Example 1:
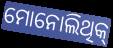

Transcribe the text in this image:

ମୋନୋଲିଥିକ୍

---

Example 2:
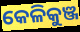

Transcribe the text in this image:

କେଳିକୁଞ୍ଜ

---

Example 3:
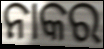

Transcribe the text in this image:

ନାକର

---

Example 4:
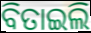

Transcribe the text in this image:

ବିତାଇଲି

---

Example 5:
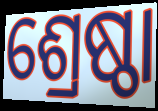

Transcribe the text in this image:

ଶ୍ରେଷ୍ଠା